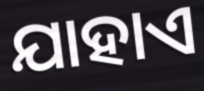
ଯାହାଏ